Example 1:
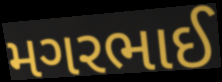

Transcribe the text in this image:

મગરભાઈ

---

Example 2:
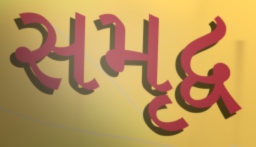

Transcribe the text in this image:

સમૃદ્વ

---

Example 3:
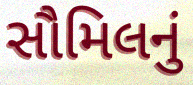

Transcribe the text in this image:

સૌમિલનું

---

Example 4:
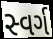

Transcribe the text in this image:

સ્વર્ગ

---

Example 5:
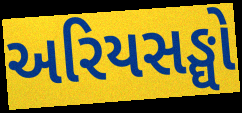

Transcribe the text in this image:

અરિયસઙ્ઘો